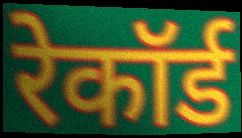
रेकॉर्ड